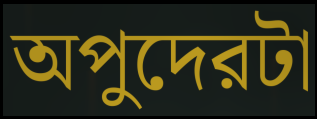
অপুদেরটা